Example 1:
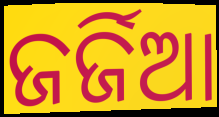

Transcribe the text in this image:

ଜର୍ଜିଆ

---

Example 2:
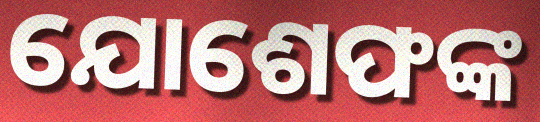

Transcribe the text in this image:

ଯୋଶେଫଙ୍କ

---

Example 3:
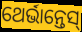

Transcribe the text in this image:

ଥେର୍ଭାନ୍ତେସ୍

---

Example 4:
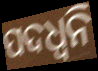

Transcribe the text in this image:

ପଦଧ୍ଵନି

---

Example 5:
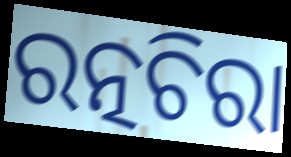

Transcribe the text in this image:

ରତ୍ନଚିରା